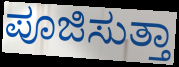
ಪೂಜಿಸುತ್ತಾ